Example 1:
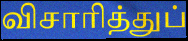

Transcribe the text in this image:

விசாரித்துப்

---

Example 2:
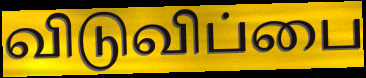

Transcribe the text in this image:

விடுவிப்பை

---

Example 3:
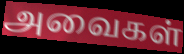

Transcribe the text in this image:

அவைகள்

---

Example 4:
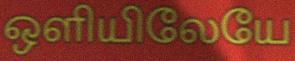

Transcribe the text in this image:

ஒளியிலேயே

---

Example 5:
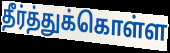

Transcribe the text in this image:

தீர்த்துக்கொள்ள